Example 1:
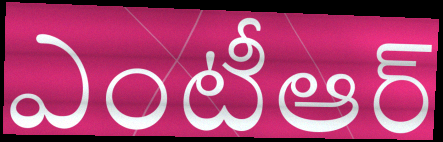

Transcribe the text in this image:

ఎంటీఆర్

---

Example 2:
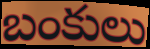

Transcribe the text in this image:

బంకులు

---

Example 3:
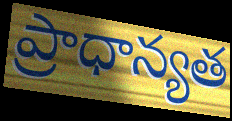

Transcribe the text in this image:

ప్రాధాన్యత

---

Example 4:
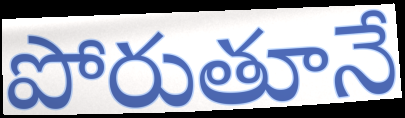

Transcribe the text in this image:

పోరుతూనే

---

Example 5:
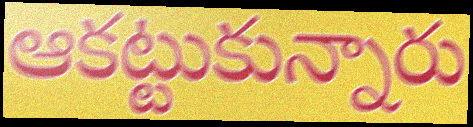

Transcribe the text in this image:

ఆకట్టుకున్నారు